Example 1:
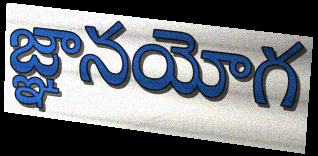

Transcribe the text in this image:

జ్ఞానయోగ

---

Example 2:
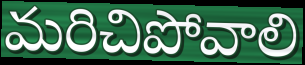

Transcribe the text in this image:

మరిచిపోవాలి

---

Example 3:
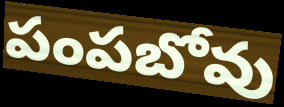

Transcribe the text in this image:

పంపబోవు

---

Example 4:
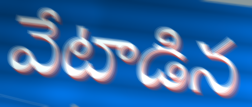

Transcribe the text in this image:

వేటాడిన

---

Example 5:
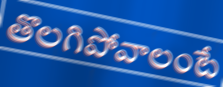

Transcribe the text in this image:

తొలగిపోవాలంటే